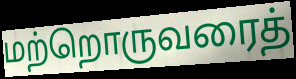
மற்றொருவரைத்